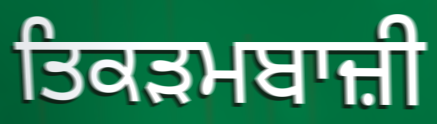
ਤਿਕੜਮਬਾਜ਼ੀ